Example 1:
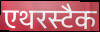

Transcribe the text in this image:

एथरस्टैक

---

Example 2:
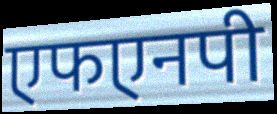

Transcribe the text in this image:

एफएनपी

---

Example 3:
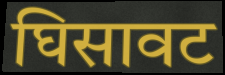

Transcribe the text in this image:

घिसावट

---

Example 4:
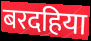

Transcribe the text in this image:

बरदहिया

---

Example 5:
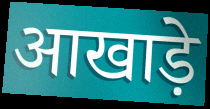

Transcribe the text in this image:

आखाड़े